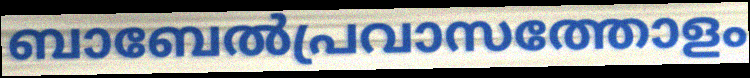
ബാബേൽപ്രവാസത്തോളം